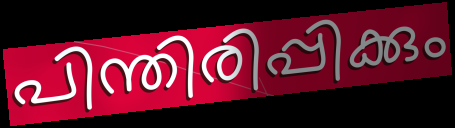
പിന്തിരിപ്പിക്കും